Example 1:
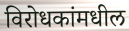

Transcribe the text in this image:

विरोधकांमधील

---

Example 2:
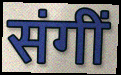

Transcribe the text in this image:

संगीं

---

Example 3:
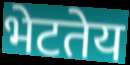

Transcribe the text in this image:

भेटतेय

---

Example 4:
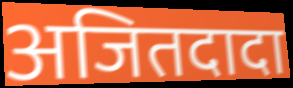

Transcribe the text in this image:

अजितदादा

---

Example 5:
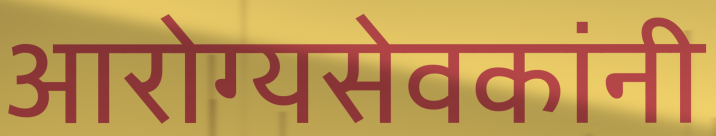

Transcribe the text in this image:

आरोग्यसेवकांनी